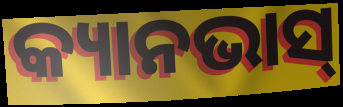
କ୍ୟାନଭାସ୍